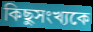
কিছুসংখ্যকে